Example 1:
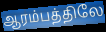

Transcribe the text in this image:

ஆரம்பத்திலே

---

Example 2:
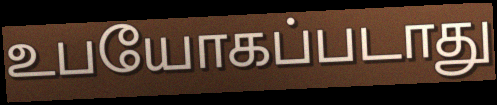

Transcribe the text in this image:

உபயோகப்படாது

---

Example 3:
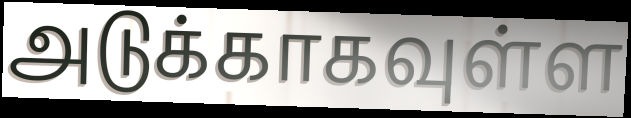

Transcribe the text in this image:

அடுக்காகவுள்ள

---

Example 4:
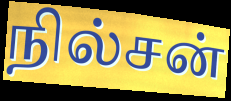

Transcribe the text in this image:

நில்சன்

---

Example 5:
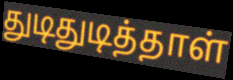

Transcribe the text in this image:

துடிதுடித்தாள்